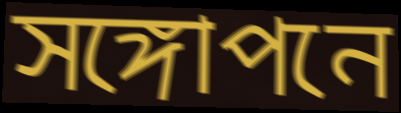
সঙ্গোপনে